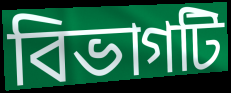
বিভাগটি